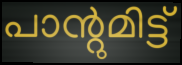
പാന്റുമിട്ട്